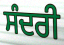
ਸੰਦਰੀ